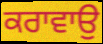
ਕਰਾਵਾਉ